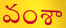
వంశా